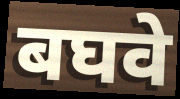
बघवे